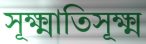
সূক্ষ্মাতিসূক্ষ্ম